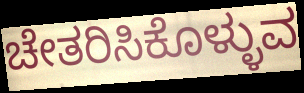
ಚೇತರಿಸಿಕೊಳ್ಳುವ